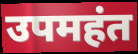
उपमहंत